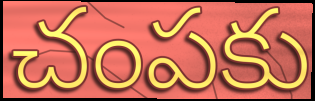
చంపకు